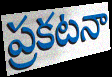
ప్రకటనా